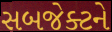
સબજેક્ટને